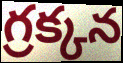
గ్రక్కన